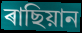
ৰাছিয়ান